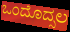
ಒಂದೊದ್ಸಲ